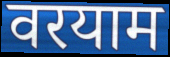
वरयाम